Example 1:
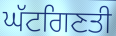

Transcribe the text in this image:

ਘੱਟਗਿਣਤੀ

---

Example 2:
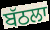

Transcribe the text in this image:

ਬੱਠਲਾ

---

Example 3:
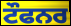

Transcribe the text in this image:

ਟੌਫਨਰ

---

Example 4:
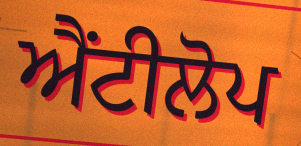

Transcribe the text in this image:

ਐਂਟੀਲੋਪ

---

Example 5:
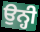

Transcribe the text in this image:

ਉਨ੍ਹੀ